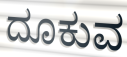
ದೂಕುವ